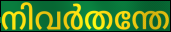
നിവർതന്തേ